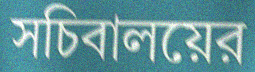
সচিবালয়ের